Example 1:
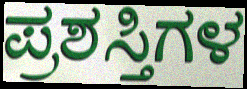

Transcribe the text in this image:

ಪ್ರಶಸ್ತಿಗಳ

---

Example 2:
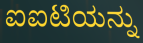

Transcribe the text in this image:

ಐಐಟಿಯನ್ನು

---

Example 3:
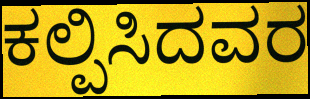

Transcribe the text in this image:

ಕಲ್ಪಿಸಿದವರ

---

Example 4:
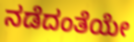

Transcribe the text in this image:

ನಡೆದಂತೆಯೇ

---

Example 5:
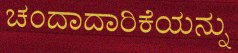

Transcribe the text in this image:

ಚಂದಾದಾರಿಕೆಯನ್ನು